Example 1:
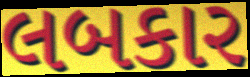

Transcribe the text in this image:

લબકાર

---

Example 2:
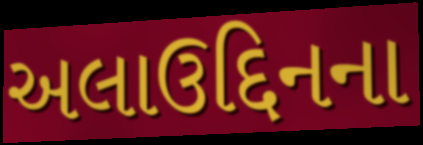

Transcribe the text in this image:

અલાઉદ્દિનના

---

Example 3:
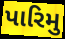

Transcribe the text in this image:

પારિમુ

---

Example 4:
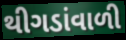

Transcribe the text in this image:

થીગડાંવાળી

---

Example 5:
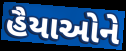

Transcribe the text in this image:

હૈયાઓને